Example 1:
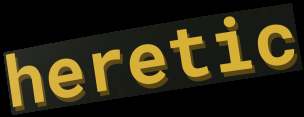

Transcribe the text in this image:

heretic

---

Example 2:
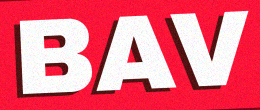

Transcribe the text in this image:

BAV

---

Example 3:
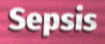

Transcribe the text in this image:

Sepsis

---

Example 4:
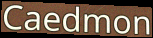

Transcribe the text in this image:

Caedmon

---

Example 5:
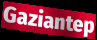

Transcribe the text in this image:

Gaziantep